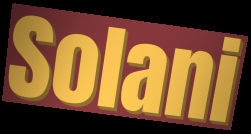
Solani